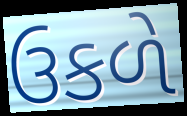
ઉકળે